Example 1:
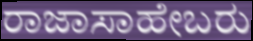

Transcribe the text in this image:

ರಾಜಾಸಾಹೇಬರು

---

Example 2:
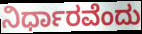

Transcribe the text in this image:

ನಿರ್ಧಾರವೆಂದು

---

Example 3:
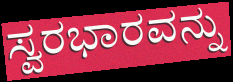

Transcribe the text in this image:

ಸ್ವರಭಾರವನ್ನು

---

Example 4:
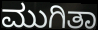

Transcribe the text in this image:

ಮುಗಿತಾ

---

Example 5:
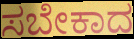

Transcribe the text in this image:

ಸಬೇಕಾದ